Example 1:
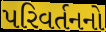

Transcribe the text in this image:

પરિવર્તનનો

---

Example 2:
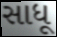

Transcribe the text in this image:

સાધૂ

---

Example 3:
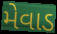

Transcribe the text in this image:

મેવાડ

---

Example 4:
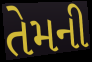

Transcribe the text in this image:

તેમની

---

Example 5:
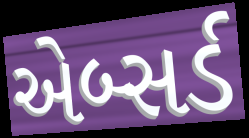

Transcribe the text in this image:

એબ્સર્ડ